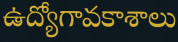
ఉద్యోగావకాశాలు